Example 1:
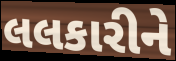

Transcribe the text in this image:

લલકારીને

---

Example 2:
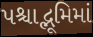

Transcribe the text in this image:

પશ્ચાદ્ભૂમિમાં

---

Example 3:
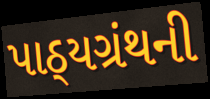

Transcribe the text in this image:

પાઠ્યગ્રંથની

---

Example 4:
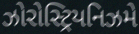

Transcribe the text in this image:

ઝોરોસ્ટ્રિયનિઝમે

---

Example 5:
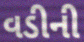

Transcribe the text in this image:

વડીની